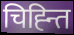
चिह्न्ति